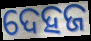
ଦେହଜ